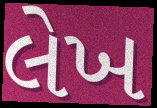
લેખ